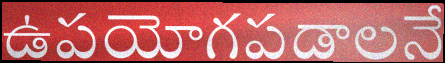
ఉపయోగపడాలనే